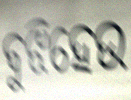
ବୁଝିହେଉ